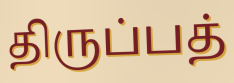
திருப்பத்